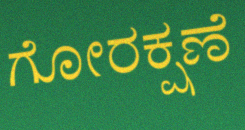
ಗೋರಕ್ಷಣೆ